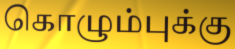
கொழும்புக்கு